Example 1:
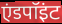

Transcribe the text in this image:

एंडपॉइंट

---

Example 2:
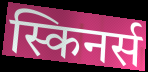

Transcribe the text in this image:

स्किनर्स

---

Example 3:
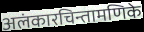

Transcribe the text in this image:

अलंकारचिन्तामणिके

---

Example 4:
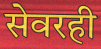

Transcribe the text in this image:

सेवरही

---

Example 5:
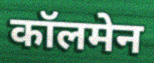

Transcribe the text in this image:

कॉलमेन